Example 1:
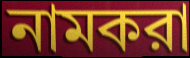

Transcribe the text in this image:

নামকরা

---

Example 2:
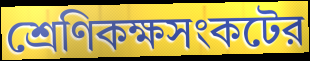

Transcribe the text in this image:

শ্রেণিকক্ষসংকটের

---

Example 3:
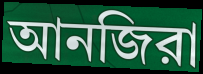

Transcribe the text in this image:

আনজিরা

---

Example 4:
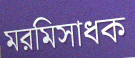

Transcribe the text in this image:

মরমিসাধক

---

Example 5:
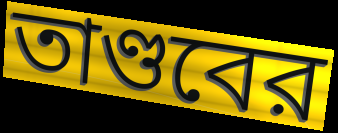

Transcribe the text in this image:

তাণ্ডবের